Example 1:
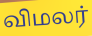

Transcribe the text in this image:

விமலர்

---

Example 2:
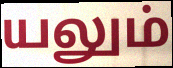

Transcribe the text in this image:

யலும்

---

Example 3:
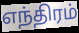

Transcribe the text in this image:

எந்திரம்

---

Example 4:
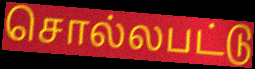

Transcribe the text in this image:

சொல்லபட்டு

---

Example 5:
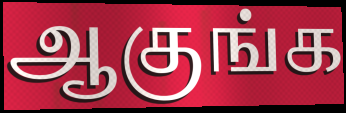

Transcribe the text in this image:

ஆகுங்க